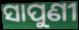
ସାପୁଣୀ